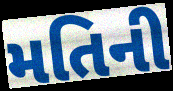
મતિની